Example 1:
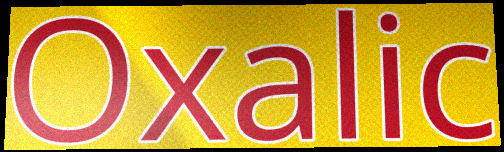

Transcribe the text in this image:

Oxalic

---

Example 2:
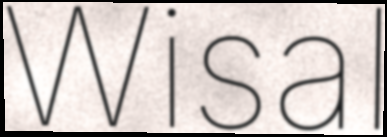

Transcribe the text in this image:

Wisal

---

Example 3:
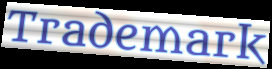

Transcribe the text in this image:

Trademark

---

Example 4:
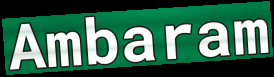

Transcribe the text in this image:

Ambaram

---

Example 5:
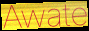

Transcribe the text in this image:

Awate